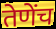
तेणेंच